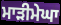
ਮਾੜੀਮੇਘਾ